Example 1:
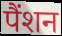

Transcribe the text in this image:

पैंशन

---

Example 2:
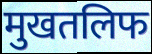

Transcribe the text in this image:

मुखतलिफ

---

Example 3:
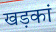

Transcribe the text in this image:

खड़कां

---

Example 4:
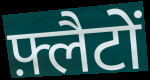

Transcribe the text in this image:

फ़्लैटों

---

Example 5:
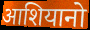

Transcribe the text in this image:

आशियानो